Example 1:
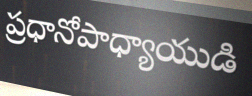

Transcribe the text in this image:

ప్రధానోపాధ్యాయుడి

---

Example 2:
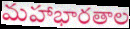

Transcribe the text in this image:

మహాభారతాల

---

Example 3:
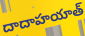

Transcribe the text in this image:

దాదాహయాత్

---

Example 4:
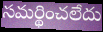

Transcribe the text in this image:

సమర్థించలేదు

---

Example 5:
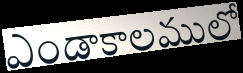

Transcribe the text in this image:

ఎండాకాలములో